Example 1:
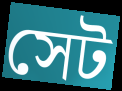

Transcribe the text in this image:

সেট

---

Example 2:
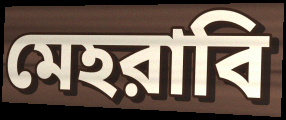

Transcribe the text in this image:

মেহরাবি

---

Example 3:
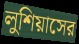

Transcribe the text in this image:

লুশিয়াসের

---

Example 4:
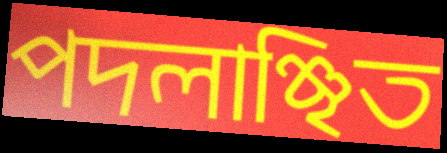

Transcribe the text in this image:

পদলাঞ্ছিত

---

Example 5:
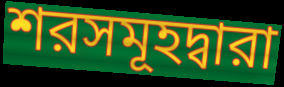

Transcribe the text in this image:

শরসমূহদ্বারা